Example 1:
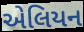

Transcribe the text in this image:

એલિયન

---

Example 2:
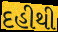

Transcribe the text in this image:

દહીથી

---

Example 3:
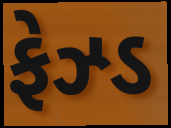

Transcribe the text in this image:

ફેઝ્ડ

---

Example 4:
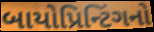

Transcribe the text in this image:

બાયોપ્રિન્ટિંગનો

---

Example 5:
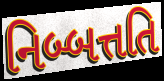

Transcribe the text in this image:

નિબ્બત્તતિ